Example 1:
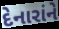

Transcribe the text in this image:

દેનારાંને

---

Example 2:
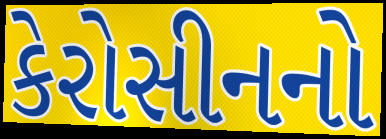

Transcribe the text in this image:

કેરોસીનનો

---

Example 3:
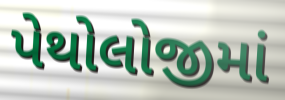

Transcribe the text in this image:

પેથોલોજીમાં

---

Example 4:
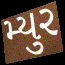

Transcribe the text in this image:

મ્યુર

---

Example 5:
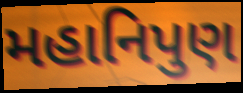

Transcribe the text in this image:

મહાનિપુણ